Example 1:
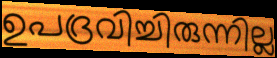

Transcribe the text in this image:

ഉപദ്രവിച്ചിരുന്നില്ല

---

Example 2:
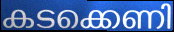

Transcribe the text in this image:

കടക്കെണി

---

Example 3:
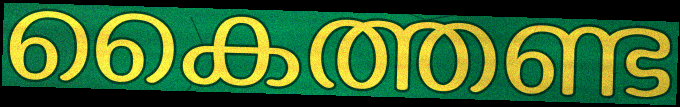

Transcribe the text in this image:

കൈത്തണ്ട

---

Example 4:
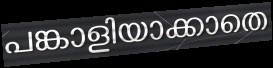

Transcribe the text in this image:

പങ്കാളിയാക്കാതെ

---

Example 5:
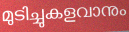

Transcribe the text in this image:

മുടിച്ചുകളവാനും